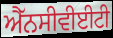
ਐੱਨਸੀਵੀਈਟੀ